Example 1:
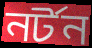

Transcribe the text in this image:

নৰ্টন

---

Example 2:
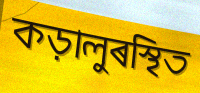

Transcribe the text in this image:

কড়ালুৰস্থিত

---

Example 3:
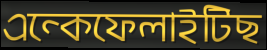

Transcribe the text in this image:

এন্কেফেলাইটিছ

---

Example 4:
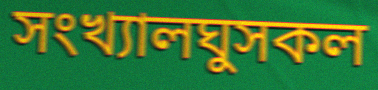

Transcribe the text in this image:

সংখ্যালঘুসকল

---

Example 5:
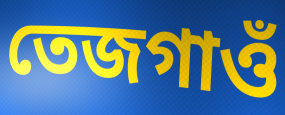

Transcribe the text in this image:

তেজগাওঁ